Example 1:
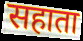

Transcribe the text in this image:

सहाता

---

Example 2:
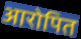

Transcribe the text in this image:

आरोपित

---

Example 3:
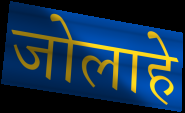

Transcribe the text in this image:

जोलाहे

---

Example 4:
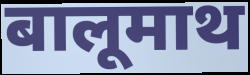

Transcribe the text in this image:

बालूमाथ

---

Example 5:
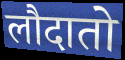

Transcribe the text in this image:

लौदातो